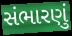
સંભારણું